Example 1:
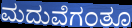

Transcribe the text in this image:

ಮದುವೆಗಂತೂ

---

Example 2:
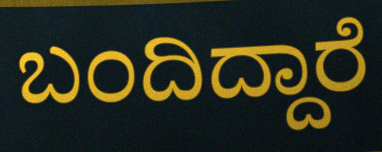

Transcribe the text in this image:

ಬಂದಿದ್ದಾರೆ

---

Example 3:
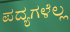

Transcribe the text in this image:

ಪದ್ಯಗಳೆಲ್ಲ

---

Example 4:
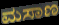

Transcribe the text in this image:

ಮಸಾಣ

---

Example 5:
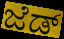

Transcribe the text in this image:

ಜೆಡ್